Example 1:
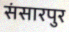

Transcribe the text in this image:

संसारपुर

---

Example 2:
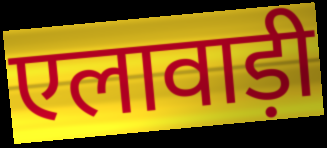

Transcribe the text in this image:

एलावाड़ी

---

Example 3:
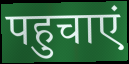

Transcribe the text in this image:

पहुचाएं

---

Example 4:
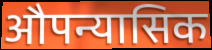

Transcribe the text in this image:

औपन्यासिक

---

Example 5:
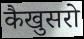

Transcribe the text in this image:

कैखुसरो